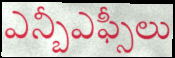
ఎన్బీఎఫ్సీలు